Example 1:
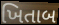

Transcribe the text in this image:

ખિતાબ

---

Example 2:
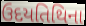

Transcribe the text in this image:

ઉદયતિથિના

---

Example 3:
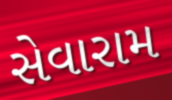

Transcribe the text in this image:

સેવારામ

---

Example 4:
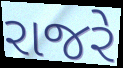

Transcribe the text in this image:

રાજરે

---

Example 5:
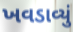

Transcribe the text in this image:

ખવડાવ્યું